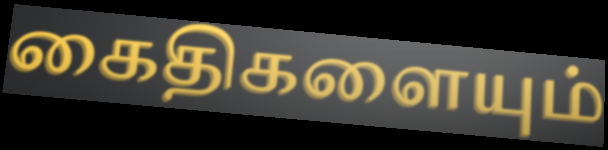
கைதிகளையும்